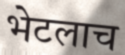
भेटलाच